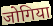
जोगिया